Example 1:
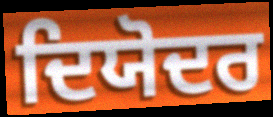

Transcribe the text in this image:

ਦਿਯੋਦਰ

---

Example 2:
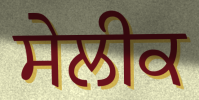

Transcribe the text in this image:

ਸੇਲੀਕ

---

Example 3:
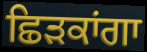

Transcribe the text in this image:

ਛਿੜਕਾਂਗਾ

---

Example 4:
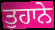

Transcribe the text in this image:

ਤੁਹਾਨੇ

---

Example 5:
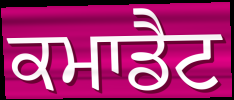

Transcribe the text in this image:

ਕਮਾਡੈਟ